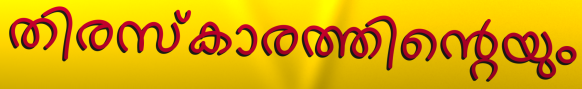
തിരസ്കാരത്തിന്റെയും